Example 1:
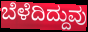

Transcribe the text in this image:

ಬೆಳೆದಿದ್ದುವು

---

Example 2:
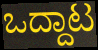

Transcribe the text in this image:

ಒದ್ದಾಟ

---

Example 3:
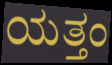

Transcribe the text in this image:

ಯತ್ತಂ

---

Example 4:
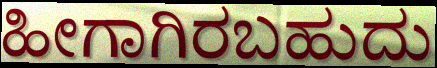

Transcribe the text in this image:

ಹೀಗಾಗಿರಬಹುದು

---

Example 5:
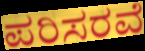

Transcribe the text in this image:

ಪರಿಸರವೆ